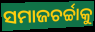
ସମାଜଚର୍ଚ୍ଚାକୁ